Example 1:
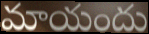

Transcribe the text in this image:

మాయందు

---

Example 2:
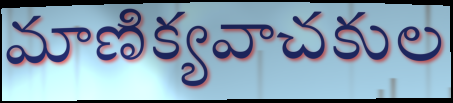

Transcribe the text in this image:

మాణిక్యవాచకుల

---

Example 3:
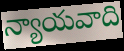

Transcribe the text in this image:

న్యాయవాది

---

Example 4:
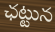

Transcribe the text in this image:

ఛట్టున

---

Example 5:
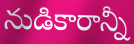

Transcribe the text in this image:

నుడికారాన్నీ